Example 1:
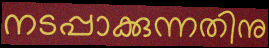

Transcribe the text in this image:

നടപ്പാക്കുന്നതിനു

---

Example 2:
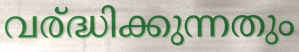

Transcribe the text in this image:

വര്ദ്ധിക്കുന്നതും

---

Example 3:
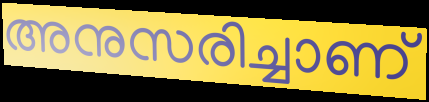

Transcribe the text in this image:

അനുസരിച്ചാണ്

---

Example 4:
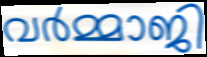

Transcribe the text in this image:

വർമ്മാജി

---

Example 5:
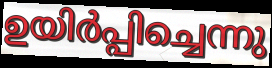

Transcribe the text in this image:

ഉയിർപ്പിച്ചെന്നു